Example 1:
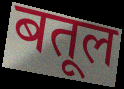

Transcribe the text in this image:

बतूल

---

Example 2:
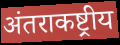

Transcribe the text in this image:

अंतराकष्ट्रीय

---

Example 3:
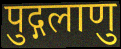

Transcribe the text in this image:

पुद्गलाणु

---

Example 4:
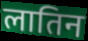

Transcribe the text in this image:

लातिन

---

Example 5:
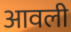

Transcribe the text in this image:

आवली